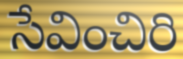
సేవించిరి